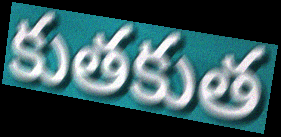
కుతకుత